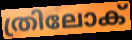
ത്രിലോക്